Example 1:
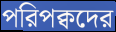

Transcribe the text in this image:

পরিপক্বদের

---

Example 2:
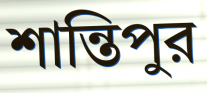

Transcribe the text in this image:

শান্তিপুর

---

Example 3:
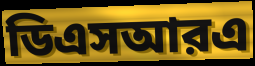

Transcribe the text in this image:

ডিএসআরএ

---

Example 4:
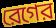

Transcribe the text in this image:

রেগের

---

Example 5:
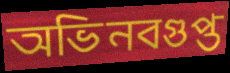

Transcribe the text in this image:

অভিনবগুপ্ত